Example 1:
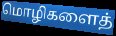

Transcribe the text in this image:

மொழிகளைத்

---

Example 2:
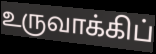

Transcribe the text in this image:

உருவாக்கிப்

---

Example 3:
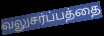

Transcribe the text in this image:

வலுசர்ப்பத்தை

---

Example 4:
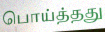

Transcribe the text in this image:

பொய்த்தது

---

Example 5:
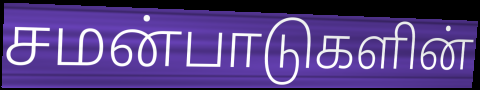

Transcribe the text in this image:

சமன்பாடுகளின்